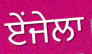
ਏਂਜੇਲਾ